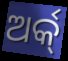
ଅର୍କ୍